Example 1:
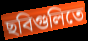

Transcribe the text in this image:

ছবিগুলিতে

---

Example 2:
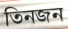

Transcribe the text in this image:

তিনজন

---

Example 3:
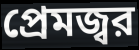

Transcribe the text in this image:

প্রেমজ্বর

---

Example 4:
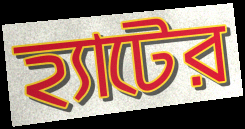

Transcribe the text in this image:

হ্যাটের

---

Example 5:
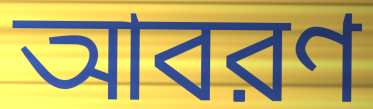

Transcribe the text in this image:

আবরণ